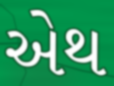
એથ